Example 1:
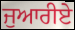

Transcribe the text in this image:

ਜੁਆਰੀਏ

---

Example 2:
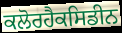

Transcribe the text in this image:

ਕਲੋਰਹੈਕਸਿਡੀਨ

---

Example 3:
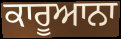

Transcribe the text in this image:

ਕਾਰੂਆਨਾ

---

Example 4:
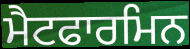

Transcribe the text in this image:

ਮੈਟਫਾਰਮਿਨ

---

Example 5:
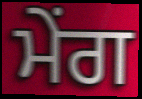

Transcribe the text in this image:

ਮੇਂਗ